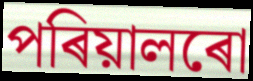
পৰিয়ালৰো